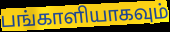
பங்காளியாகவும்